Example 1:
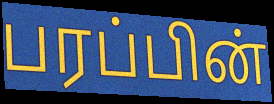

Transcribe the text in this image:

பரப்பின்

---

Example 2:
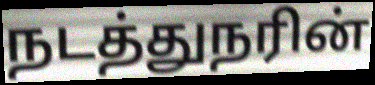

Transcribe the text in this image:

நடத்துநரின்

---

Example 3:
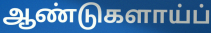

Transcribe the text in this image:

ஆண்டுகளாய்ப்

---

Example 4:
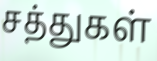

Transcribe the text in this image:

சத்துகள்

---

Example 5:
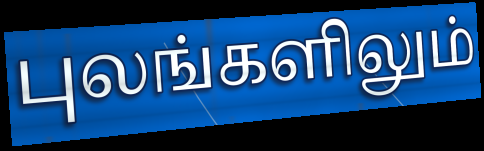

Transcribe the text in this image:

புலங்களிலும்